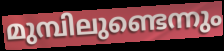
മുമ്പിലുണ്ടെന്നും